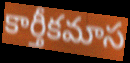
కార్తీకమాస